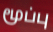
மூப்பு